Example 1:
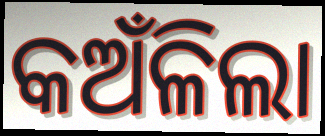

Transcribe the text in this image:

କଅଁଳିଲା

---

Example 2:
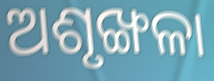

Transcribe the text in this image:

ଅଶୃଙ୍ଖଳା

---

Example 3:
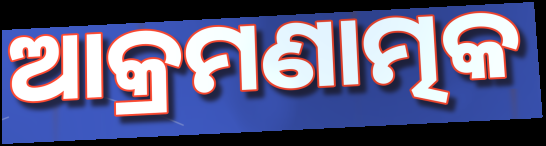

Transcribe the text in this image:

ଆକ୍ରମଣାତ୍ମକ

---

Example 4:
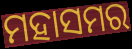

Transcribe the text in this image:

ମହାସମର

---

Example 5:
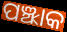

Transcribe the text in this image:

ପଞ୍ଝାକ